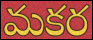
మకర